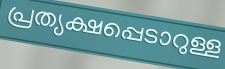
പ്രത്യക്ഷപ്പെടാറുള്ള